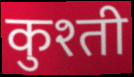
कुश्ती